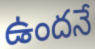
ఉందనే